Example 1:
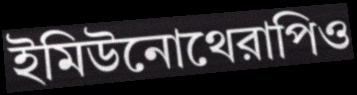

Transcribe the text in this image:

ইমিউনোথেরাপিও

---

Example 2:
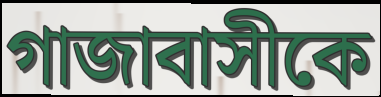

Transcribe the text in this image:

গাজাবাসীকে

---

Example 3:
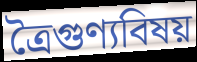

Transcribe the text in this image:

ত্রৈগুণ্যবিষয়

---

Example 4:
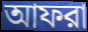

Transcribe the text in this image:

আফরা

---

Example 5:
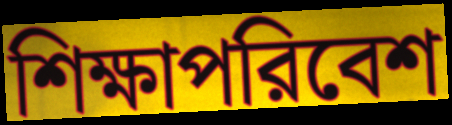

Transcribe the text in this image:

শিক্ষাপরিবেশ